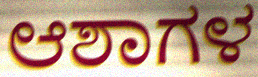
ಆಶಾಗಳ